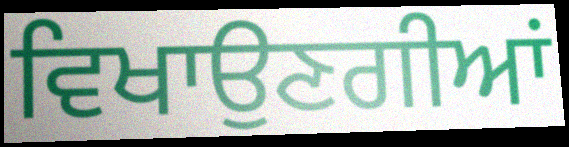
ਵਿਖਾਉਣਗੀਆਂ